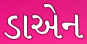
ડાએન